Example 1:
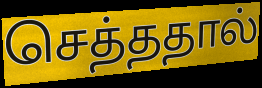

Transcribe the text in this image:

செத்ததால்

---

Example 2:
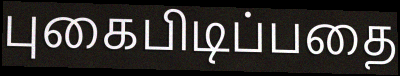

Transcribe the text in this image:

புகைபிடிப்பதை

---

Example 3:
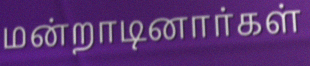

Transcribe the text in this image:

மன்றாடினார்கள்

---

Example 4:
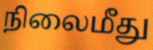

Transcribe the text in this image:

நிலைமீது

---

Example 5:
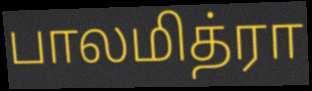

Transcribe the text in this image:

பாலமித்ரா